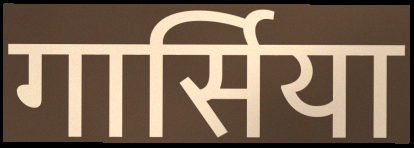
गार्सिया